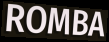
ROMBA